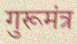
गुरूमंत्र